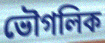
ভৌগলিক